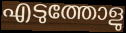
എടുത്തോളു